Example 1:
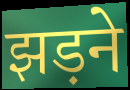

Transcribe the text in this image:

झड़ने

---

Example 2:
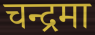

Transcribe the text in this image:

चन्द्रमा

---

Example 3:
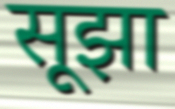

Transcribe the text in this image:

सूझा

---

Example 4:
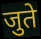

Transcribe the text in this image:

जुते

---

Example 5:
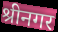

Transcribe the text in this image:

श्रीनगर